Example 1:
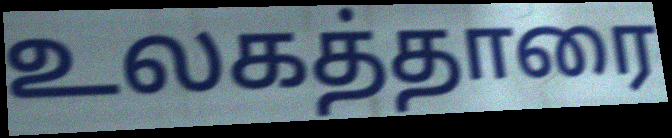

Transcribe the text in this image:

உலகத்தாரை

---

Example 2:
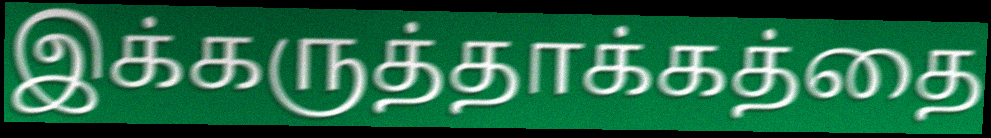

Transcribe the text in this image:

இக்கருத்தாக்கத்தை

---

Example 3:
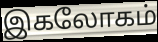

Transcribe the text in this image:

இகலோகம்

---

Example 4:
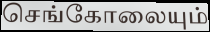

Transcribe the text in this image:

செங்கோலையும்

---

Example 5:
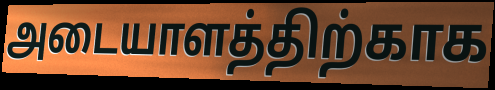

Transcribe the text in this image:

அடையாளத்திற்காக